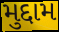
મુદ્દામ